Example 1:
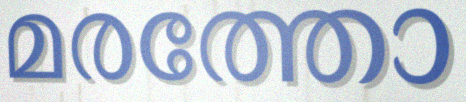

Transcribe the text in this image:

മരത്തോ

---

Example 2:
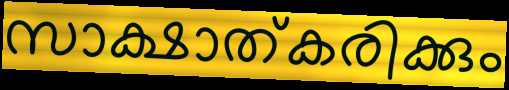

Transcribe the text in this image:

സാക്ഷാത്കരിക്കും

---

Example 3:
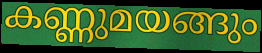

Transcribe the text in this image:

കണ്ണുമയങ്ങും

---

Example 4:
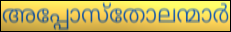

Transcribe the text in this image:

അപ്പോസ്തോലന്മാർ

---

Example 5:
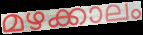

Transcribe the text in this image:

മഴക്കാലം